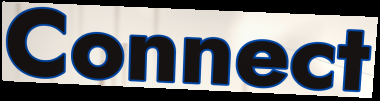
Connect